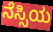
ನೆಸ್ಸಿಯ